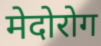
मेदोरोग